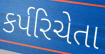
કર્પરિચેતા